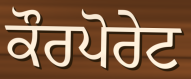
ਕੌਰਪੋਰੇਟ